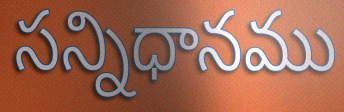
సన్నిధానము